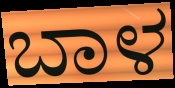
ಬಾಳ